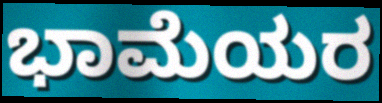
ಭಾಮೆಯರ